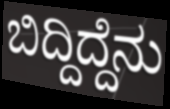
ಬಿದ್ದಿದ್ದೆನು